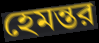
হেমন্তর